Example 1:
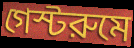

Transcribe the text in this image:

গেস্টরুমে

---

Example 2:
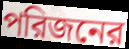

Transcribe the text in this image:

পরিজনের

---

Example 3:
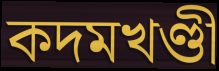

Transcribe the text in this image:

কদমখণ্ডী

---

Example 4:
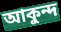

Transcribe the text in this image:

আকুন্দ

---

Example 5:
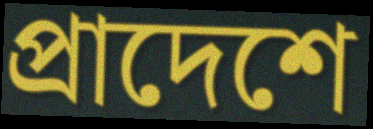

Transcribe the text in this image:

প্রাদেশে